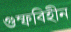
গুম্ফবিহীন